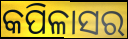
କପିଳାସର